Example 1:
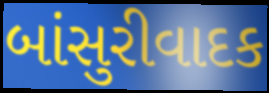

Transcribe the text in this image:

બાંસુરીવાદક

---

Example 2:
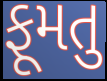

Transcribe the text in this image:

ફૂમતુ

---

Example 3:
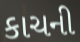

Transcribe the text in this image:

કાચની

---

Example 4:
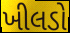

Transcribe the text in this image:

ખીલડો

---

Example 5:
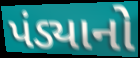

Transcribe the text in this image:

પંડ્યાનો